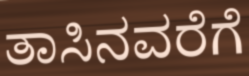
ತಾಸಿನವರೆಗೆ